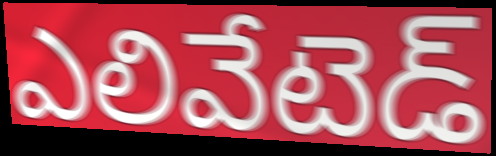
ఎలివేటెడ్